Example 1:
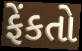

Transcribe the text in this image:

ફેંકતો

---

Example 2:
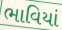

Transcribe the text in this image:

ભાવિયાં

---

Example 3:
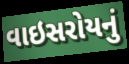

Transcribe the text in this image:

વાઇસરોયનું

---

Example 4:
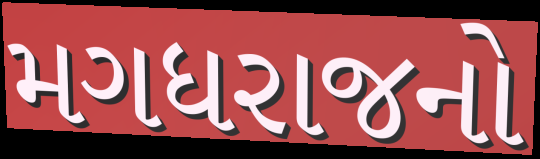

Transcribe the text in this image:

મગધરાજનો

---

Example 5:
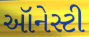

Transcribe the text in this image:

ઑનેસ્ટી